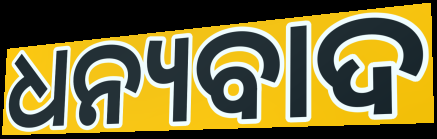
ଧନ୍ୟବାଦ